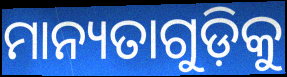
ମାନ୍ୟତାଗୁଡ଼ିକୁ